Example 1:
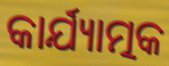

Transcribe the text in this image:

କାର୍ଯ୍ୟାତ୍ମକ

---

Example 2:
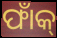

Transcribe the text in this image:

ଫାଁକ୍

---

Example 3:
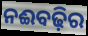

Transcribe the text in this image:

ନଈବଢ଼ିର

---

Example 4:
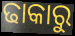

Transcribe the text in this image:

ଢାକାରୁ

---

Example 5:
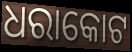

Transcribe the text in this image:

ଧରାକୋଟ